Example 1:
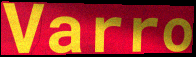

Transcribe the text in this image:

Varro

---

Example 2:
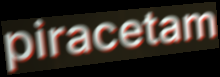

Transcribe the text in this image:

piracetam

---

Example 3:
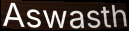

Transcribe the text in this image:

Aswasth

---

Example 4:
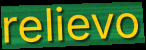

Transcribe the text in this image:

relievo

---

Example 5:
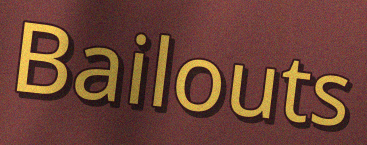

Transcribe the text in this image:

Bailouts